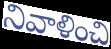
నివాళించి